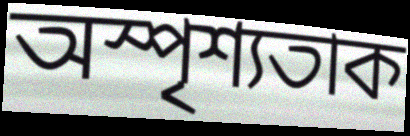
অস্পৃশ্যতাক